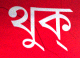
থুক্